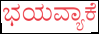
ಭಯವ್ಯಾಕೆ